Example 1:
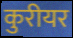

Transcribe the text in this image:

कुरीयर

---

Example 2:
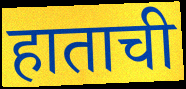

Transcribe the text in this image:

हाताची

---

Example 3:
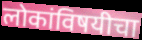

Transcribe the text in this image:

लोकांविषयीचा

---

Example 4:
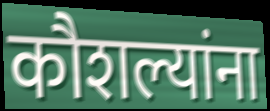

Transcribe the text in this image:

कौशल्यांना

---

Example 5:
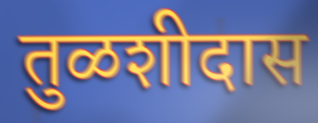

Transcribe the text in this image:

तुळशीदास